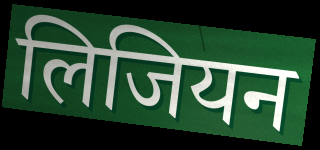
लिजियन